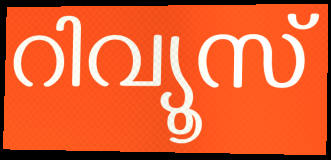
റിവ്യൂസ്